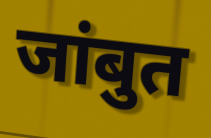
जांबुत